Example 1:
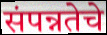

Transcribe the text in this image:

संपन्नतेचे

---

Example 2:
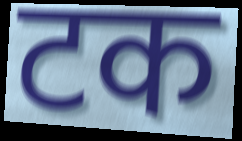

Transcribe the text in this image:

टक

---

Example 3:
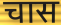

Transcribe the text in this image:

चास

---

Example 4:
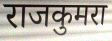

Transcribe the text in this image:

राजकुमरा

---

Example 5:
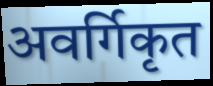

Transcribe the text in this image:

अवर्गिकृत